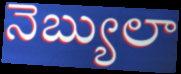
నెబ్యులా